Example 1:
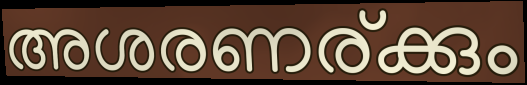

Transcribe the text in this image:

അശരണര്ക്കും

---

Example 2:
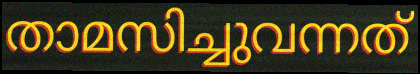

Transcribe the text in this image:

താമസിച്ചുവന്നത്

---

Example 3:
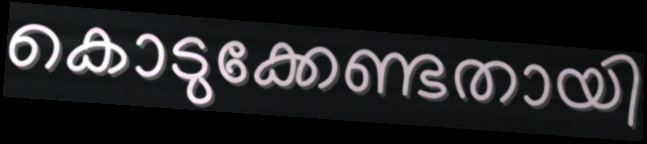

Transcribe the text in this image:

കൊടുക്കേണ്ടതായി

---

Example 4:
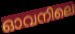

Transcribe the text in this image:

ഓവനിലെ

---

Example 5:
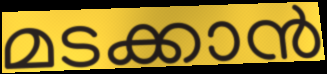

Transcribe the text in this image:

മടക്കാൻ